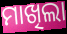
ମାଖିଲା